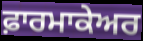
ਫ਼ਾਰਮਾਕੇਅਰ